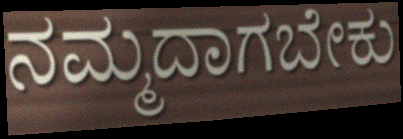
ನಮ್ಮದಾಗಬೇಕು